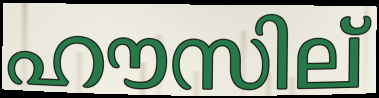
ഹൗസില്